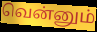
வென்னும்